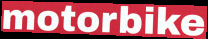
motorbike